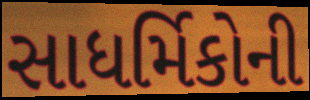
સાધર્મિકોની